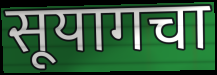
सूयागचा